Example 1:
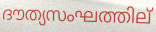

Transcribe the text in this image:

ദൗത്യസംഘത്തില്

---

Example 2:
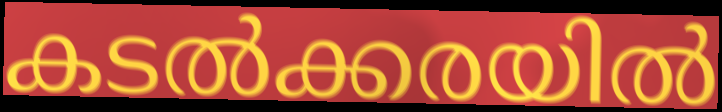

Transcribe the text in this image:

കടൽക്കരയിൽ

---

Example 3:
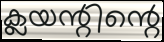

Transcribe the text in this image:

ക്ലയന്റിന്റെ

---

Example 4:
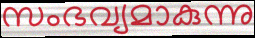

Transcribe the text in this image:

സംഭവ്യമാകുന്നു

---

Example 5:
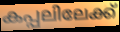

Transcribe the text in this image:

കപ്പലിലേക്ക്